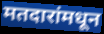
मतदारांमधून